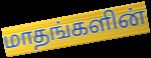
மாதங்களின்